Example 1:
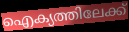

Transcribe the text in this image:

ഐക്യത്തിലേക്ക്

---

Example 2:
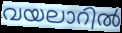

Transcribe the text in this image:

വയലാറിൽ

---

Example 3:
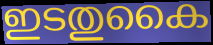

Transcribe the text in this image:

ഇടതുകൈ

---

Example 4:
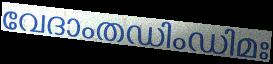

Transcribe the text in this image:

വേദാംതഡിംഡിമഃ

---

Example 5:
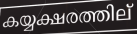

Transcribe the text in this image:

കയ്യക്ഷരത്തില്